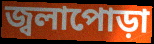
জ্বলাপোড়া